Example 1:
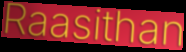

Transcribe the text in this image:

Raasithan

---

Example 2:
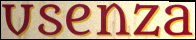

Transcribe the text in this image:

usenza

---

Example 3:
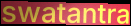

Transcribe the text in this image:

swatantra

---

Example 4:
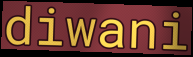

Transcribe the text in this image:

diwani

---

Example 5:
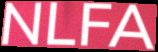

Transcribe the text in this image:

NLFA